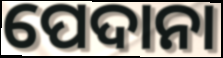
ପେଦାନା